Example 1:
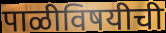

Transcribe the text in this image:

पाळीविषयीची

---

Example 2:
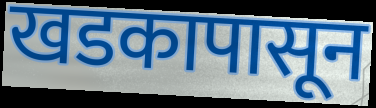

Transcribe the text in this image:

खडकापासून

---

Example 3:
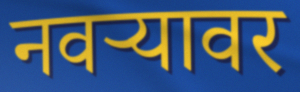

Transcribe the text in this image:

नवर्‍यावर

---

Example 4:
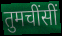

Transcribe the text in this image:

तुमचींसीं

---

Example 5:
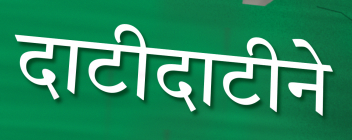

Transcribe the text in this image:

दाटीदाटीने